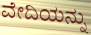
ವೇದಿಯನ್ನು